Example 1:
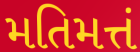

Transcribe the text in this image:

મતિમત્તં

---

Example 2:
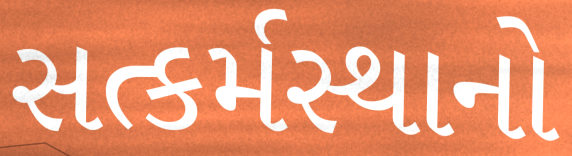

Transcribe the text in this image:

સત્કર્મસ્થાનો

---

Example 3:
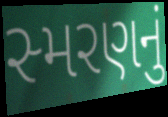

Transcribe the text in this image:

સ્મરણનું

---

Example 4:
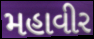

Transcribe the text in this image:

મહાવીર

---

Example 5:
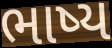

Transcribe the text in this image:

ભાષ્ય